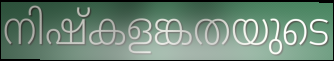
നിഷ്കളങ്കതയുടെ